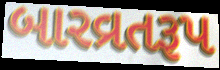
બારવ્રતરૂપ